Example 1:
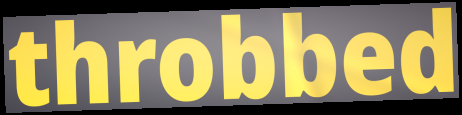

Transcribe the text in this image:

throbbed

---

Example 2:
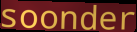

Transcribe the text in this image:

soonder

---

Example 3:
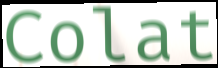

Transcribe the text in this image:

Colat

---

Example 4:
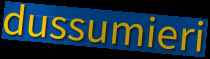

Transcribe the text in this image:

dussumieri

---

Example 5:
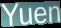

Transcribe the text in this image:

Yuen